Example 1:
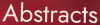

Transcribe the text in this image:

Abstracts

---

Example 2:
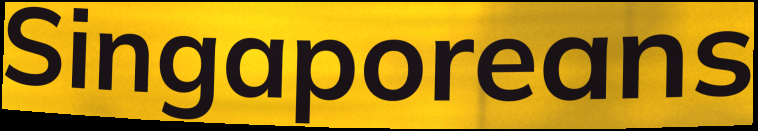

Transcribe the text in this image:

Singaporeans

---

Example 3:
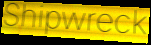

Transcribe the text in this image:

Shipwreck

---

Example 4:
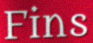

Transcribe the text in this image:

Fins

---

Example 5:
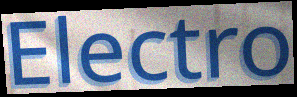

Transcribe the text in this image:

Electro